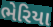
ભેરિયા